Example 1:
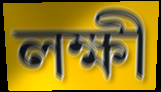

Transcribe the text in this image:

লক্ষী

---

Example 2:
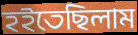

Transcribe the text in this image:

হইতেছিলাম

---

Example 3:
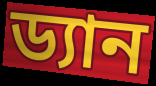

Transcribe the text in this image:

ড্যান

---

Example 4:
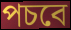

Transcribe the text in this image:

পচবে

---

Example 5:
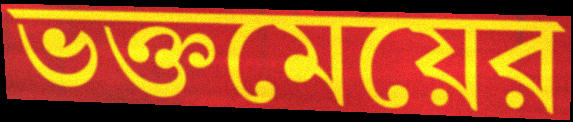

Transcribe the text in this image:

ভক্তমেয়ের